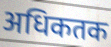
अधिकतक